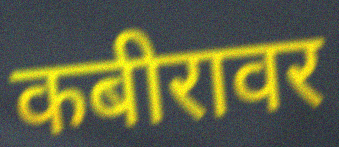
कबीरावर